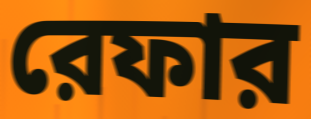
রেফার